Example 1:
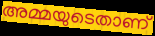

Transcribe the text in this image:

അമ്മയുടെതാണ്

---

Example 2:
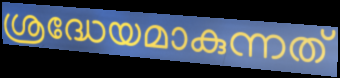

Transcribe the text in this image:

ശ്രദ്ധേയമാകുന്നത്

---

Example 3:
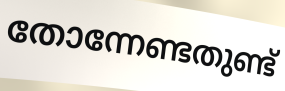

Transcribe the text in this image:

തോന്നേണ്ടതുണ്ട്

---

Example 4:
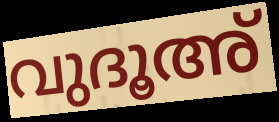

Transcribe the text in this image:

വുദൂഅ്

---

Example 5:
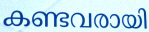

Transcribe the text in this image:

കണ്ടവരായി